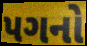
પગનો